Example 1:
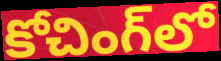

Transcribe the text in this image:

కోచింగ్‌లో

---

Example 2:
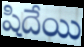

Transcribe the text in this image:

షిదేయి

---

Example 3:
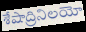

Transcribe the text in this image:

శేషాద్రినిలయో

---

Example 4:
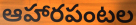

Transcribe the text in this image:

ఆహారపంటల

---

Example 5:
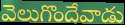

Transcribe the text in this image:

వెలుగొందేవాడు